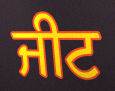
ਜੀਟ